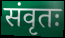
संवृतः